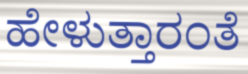
ಹೇಳುತ್ತಾರಂತೆ